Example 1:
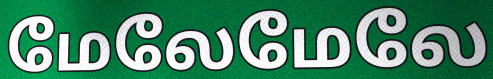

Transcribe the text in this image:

மேலேமேலே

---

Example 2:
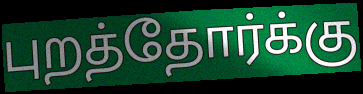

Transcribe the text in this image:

புறத்தோர்க்கு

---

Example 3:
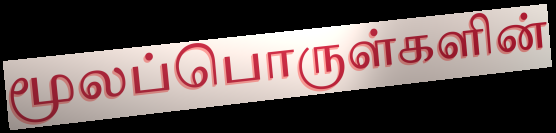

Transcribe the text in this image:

மூலப்பொருள்களின்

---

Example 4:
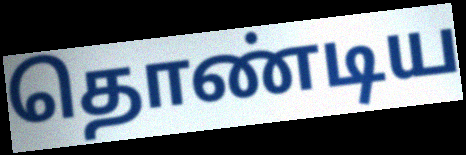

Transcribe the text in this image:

தொண்டிய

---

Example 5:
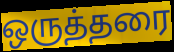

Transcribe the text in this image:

ஒருத்தரை